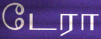
டேரா